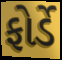
ફોર્ડે